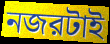
নজরটাই